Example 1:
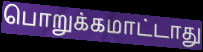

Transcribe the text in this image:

பொறுக்கமாட்டாது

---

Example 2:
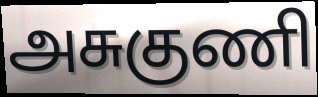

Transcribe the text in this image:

அசுகுணி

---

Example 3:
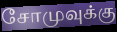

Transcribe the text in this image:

சோமுவுக்கு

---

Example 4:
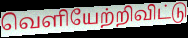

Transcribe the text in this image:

வெளியேற்றிவிட்டு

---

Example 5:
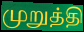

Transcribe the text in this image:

முறுத்தி